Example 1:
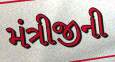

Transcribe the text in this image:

મંત્રીજીની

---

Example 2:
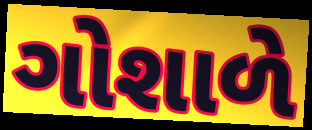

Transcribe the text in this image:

ગોશાળે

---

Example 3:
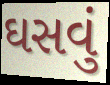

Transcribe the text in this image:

ઘસવું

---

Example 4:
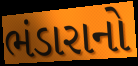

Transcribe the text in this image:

ભંડારાનો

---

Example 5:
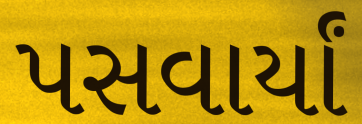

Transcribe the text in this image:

પસવાર્યાં